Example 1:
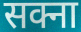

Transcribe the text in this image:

सक्ना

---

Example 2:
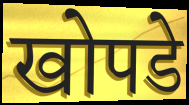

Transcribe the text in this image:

खोपडे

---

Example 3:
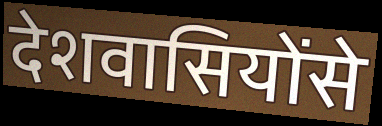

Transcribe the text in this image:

देशवासियोंसे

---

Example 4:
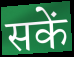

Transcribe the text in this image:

सकें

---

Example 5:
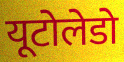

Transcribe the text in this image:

यूटोलेडो